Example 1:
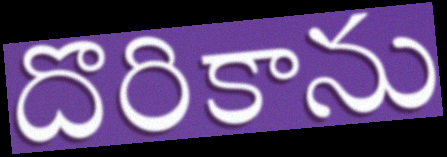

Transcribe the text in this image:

దొరికాను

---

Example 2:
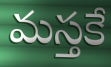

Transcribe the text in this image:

మస్తకే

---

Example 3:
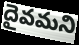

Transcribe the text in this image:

దైవమని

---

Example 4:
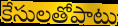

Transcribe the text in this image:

కేసులతోపాటు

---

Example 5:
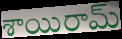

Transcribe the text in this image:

శాయిరామ్